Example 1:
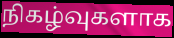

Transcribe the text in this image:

நிகழ்வுகளாக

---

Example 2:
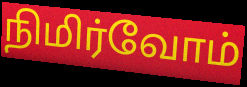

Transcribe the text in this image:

நிமிர்வோம்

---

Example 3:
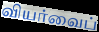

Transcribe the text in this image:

வியர்வைப்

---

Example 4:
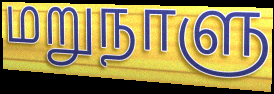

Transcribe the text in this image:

மறுநாளு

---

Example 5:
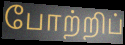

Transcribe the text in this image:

போற்றிப்